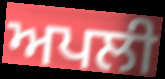
ਅਪਲੀ